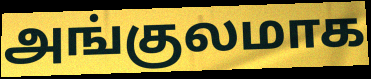
அங்குலமாக